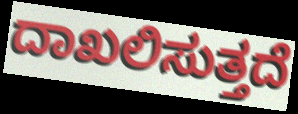
ದಾಖಲಿಸುತ್ತದೆ